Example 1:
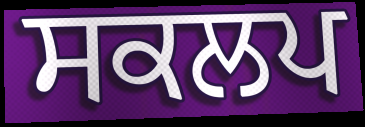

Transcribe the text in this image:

ਸਕਲਪ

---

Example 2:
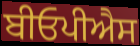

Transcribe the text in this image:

ਬੀਓਪੀਐਸ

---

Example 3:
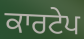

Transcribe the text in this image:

ਕਾਰਟੇਪ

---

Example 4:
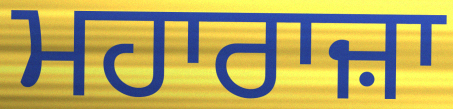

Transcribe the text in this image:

ਮਹਾਰਾਜ਼ਾ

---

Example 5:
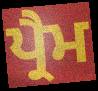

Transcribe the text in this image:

ਪ੍ਰੈਮ